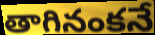
తాగినంకనే